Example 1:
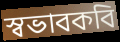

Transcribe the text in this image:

স্বভাবকবি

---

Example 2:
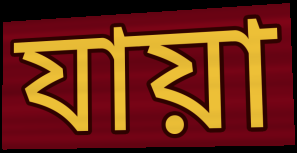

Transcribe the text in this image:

যায়া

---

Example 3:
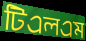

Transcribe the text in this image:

টিএলএম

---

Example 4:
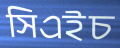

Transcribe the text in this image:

সিএইচ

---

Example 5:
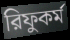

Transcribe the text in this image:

রিফুকর্ম